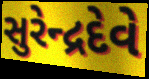
સુરેન્દ્રદેવે